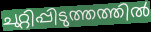
ചുറ്റിപ്പിടുത്തത്തിൽ